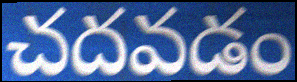
చదవడం